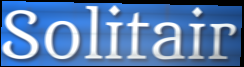
Solitair